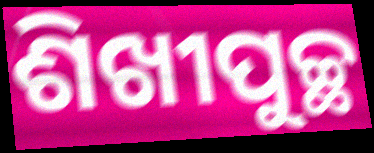
ଶିଖୀପୁଚ୍ଛ